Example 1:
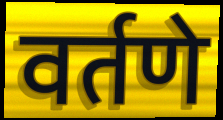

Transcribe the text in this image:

वर्तणे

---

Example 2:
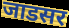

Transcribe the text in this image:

जाडसर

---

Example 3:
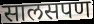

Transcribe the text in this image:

सालसपण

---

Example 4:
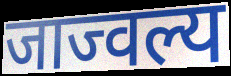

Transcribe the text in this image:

जाज्वल्य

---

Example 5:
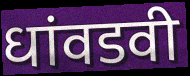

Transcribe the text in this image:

धांवडवी